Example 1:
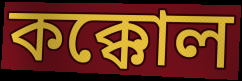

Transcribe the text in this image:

কক্কোল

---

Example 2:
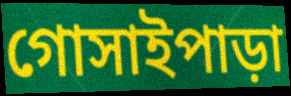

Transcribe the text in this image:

গোসাইপাড়া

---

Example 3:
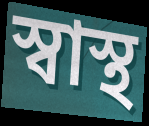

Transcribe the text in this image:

স্বাস্থ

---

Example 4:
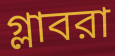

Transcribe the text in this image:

গ্লাবরা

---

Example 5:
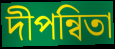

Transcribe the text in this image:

দীপন্বিতা